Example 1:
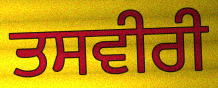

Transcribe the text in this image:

ਤਸਵੀਰੀ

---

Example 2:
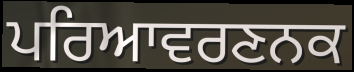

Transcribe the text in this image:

ਪਰਿਆਵਰਣਨਕ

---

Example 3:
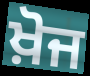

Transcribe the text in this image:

ਖ਼ੋਜ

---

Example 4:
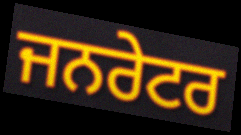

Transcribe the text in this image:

ਜਨਰੇਟਰ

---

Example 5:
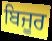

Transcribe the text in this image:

ਬਿਜੂਰ